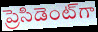
ప్రెసిడెంట్‌గా